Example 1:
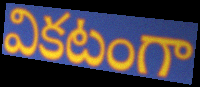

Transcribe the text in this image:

వికటంగా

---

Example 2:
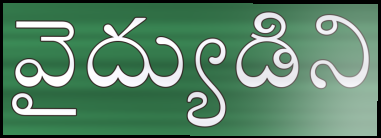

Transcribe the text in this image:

వైద్యుడిని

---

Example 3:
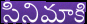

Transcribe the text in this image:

సినిమాకి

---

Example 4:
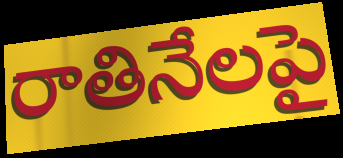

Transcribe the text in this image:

రాతినేలపై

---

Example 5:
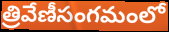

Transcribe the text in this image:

త్రివేణీసంగమంలో